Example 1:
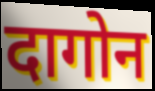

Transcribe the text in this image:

दागोन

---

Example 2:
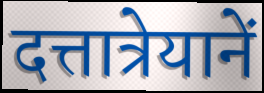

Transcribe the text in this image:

दत्तात्रेयानें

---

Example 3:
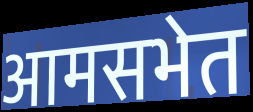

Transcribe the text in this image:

आमसभेत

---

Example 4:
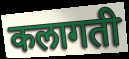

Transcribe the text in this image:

कलागती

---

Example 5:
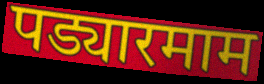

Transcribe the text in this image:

पड्यारमाम